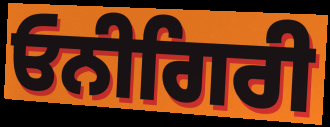
ਓਨੀਗਿਰੀ